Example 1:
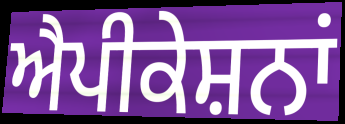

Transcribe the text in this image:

ਐਪੀਕੇਸ਼ਨਾਂ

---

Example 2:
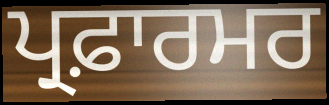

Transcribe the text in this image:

ਪ੍ਰਫ਼ਾਰਮਰ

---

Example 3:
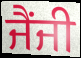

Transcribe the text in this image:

ਜੈਂਜੀ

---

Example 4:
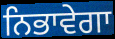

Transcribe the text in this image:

ਨਿਭਾਵੇਗਾ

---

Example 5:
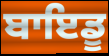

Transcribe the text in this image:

ਬਾਇਡੂ